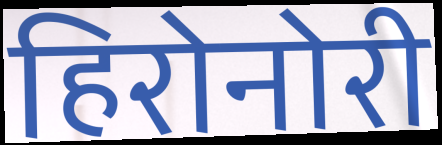
हिरोनोरी